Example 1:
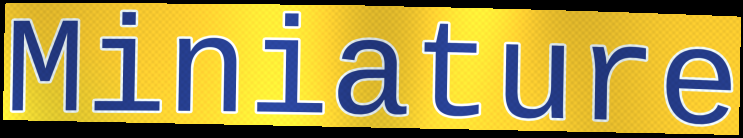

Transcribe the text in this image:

Miniature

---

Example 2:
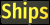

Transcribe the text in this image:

Ships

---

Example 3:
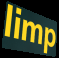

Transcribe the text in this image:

limp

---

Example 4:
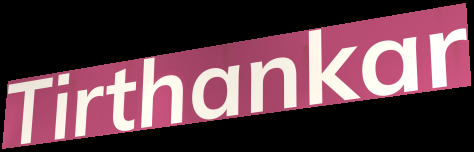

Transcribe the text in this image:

Tirthankar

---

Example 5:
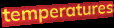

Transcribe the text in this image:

temperatures